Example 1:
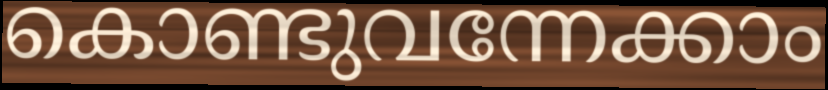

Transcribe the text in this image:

കൊണ്ടുവന്നേക്കാം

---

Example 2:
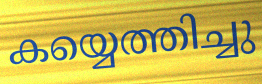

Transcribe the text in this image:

കയ്യെത്തിച്ചു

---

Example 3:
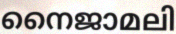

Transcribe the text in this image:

നൈജാമലി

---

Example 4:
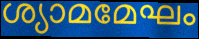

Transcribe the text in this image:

ശ്യാമമേഘം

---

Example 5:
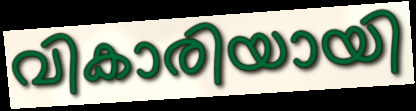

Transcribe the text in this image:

വികാരിയായി